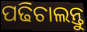
ପଢିଚାଲନ୍ତୁ